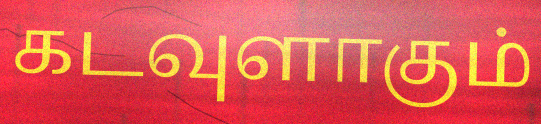
கடவுளாகும்